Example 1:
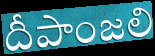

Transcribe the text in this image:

దీపాంజలి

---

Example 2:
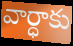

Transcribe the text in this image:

వార్ధాకు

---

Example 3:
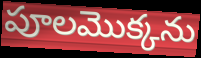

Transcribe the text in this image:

పూలమొక్కను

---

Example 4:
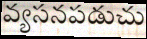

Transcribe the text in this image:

వ్యసనపడుచు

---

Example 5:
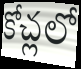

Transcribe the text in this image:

కోచ్లలో